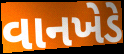
વાનખેડે